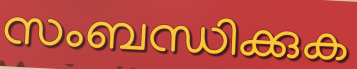
സംബന്ധിക്കുക